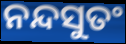
ନନ୍ଦସୁତଂ